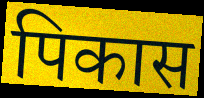
पिकास